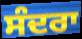
ਸੰਦਰਾ